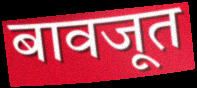
बावजूत